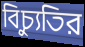
বিচ্যুতির